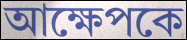
আক্ষেপকে